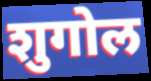
शुगोल